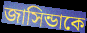
জাসিন্ডাকে